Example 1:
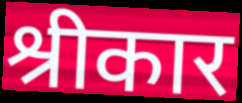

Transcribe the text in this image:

श्रीकार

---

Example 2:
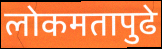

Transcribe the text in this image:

लोकमतापुढे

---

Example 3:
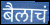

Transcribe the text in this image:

बैलाचं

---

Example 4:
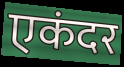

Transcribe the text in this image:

एकंदर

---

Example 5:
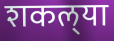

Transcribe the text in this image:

शकल्या